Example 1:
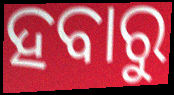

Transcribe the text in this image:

ହବାରୁ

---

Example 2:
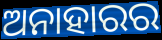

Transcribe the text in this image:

ଅନାହାରର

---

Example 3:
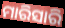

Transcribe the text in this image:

ମାରିସାରି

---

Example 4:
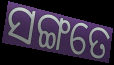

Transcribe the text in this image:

ସଙ୍ଗତେ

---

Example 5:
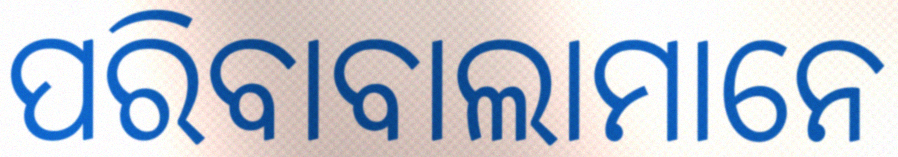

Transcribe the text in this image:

ପରିବାବାଲାମାନେ